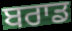
ਬਰਾਡ